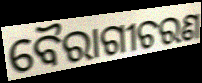
ବୈରାଗୀଚରଣ